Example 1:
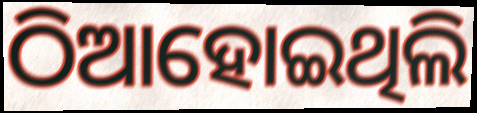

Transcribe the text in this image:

ଠିଆହୋଇଥିଲି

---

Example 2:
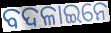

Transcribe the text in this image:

ବଦଳାଇନେ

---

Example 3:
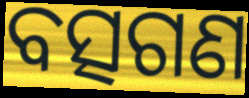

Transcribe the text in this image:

ବତ୍ସଗଣ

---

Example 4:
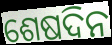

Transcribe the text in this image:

ଶେଷଦିନ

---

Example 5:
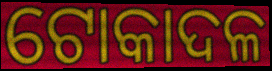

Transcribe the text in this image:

ଟୋକାଦଳ